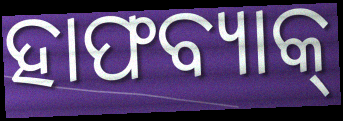
ହାଫବ୍ୟାକ୍